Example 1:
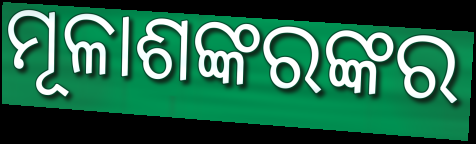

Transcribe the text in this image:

ମୂଳାଶଙ୍କରଙ୍କର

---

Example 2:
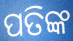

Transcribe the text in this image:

ପତିଙ୍କ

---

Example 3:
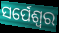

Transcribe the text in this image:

ସର୍ପେଶ୍ୱର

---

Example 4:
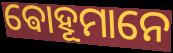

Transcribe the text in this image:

ଵୋହୂମାନେ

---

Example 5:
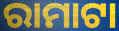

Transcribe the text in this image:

ରାମାଟା